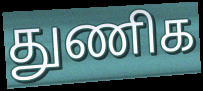
துணிக